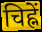
चिह्नें